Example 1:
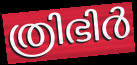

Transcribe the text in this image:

ത്രിഭിർ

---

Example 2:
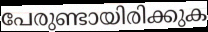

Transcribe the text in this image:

പേരുണ്ടായിരിക്കുക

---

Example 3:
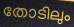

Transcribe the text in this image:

തോടിലും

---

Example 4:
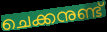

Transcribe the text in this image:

ചെക്കനുണ്ട്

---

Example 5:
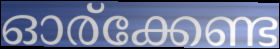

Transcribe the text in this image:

ഓര്ക്കേണ്ട